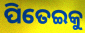
ପିତେଇକୁ